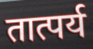
तात्पर्य